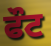
ਫੌਟ